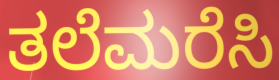
ತಲೆಮರೆಸಿ